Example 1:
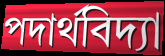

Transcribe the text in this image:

পদার্থবিদ্যা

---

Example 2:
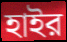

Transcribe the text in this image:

হাইর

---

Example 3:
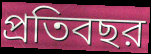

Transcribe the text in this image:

প্রতিবছর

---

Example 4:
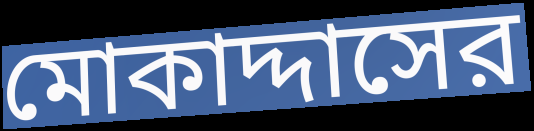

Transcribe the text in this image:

মোকাদ্দাসের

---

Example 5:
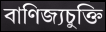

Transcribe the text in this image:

বাণিজ্যচুক্তি